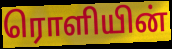
ரொளியின்